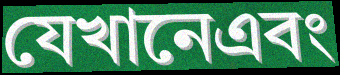
যেখানেএবং